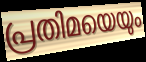
പ്രതിമയെയും